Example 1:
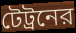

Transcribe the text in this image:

টেট্রনের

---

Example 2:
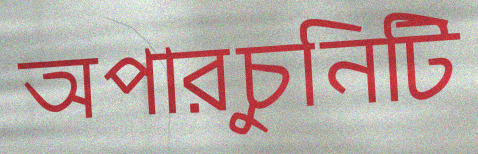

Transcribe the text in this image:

অপারচুনিটি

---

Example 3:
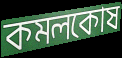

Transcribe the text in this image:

কমলকোষ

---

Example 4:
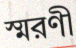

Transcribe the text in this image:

স্মরণী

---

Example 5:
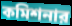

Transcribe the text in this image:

কমিশনার